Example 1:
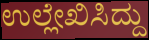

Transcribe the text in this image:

ಉಲ್ಲೇಖಿಸಿದ್ದು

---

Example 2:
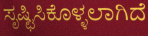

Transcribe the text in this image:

ಸೃಷ್ಟಿಸಿಕೊಳ್ಳಲಾಗಿದೆ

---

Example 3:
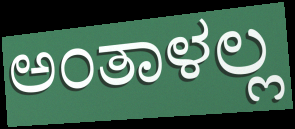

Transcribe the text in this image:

ಅಂತಾಳಲ್ಲ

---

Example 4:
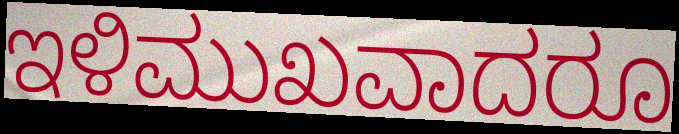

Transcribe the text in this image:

ಇಳಿಮುಖವಾದರೂ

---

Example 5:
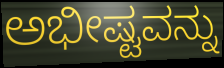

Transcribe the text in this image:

ಅಭೀಷ್ಟವನ್ನು